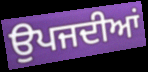
ਉਪਜਦੀਆਂ